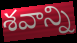
శవాన్ని